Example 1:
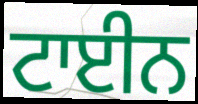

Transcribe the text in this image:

ਟਾਈਨ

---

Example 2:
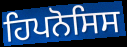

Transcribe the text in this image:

ਹਿਪਨੋਸਿਸ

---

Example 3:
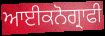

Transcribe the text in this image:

ਆਈਕਨੋਗ੍ਰਾਫੀ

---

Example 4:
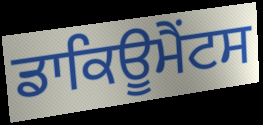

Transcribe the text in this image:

ਡਾਕਿਊਮੈਂਟਸ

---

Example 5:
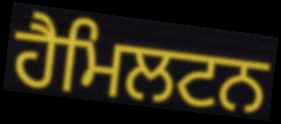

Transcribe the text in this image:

ਹੈਮਿਲਟਨ